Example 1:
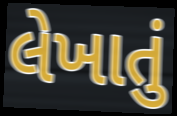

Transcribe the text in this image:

લેખાતું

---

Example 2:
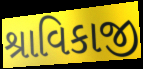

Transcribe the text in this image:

શ્રાવિકાજી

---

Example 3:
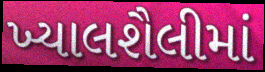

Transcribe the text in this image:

ખ્યાલશૈલીમાં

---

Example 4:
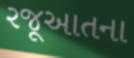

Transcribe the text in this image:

રજૂઆતના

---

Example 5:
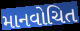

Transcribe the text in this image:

માનવોચિત